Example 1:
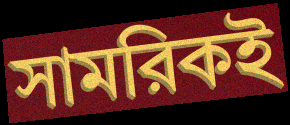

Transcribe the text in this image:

সামরিকই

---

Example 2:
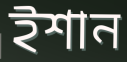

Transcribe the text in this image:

ইশান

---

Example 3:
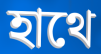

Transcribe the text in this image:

হাথে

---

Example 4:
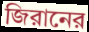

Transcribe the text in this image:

জিরানের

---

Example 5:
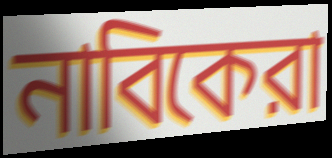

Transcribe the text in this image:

নাবিকেরা